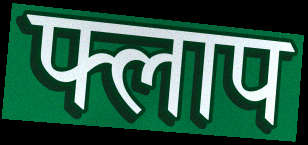
फ्लाप